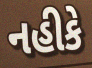
નહીકે